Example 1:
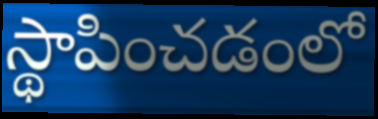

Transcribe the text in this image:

స్థాపించడంలో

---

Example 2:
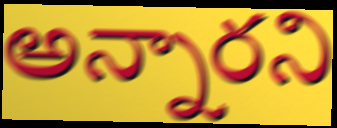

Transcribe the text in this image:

అన్నారని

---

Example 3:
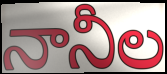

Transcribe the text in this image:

నానీల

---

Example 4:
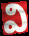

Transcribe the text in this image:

వి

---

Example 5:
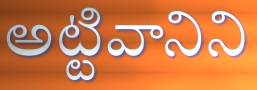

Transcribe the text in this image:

అట్టివానిని